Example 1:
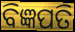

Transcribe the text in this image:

ବିଜ୍ଞପତି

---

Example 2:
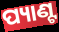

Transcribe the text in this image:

ପ୍ୟାଣ୍ଟ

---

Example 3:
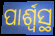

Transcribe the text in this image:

ପାର୍ଶ୍ବସ୍ଥ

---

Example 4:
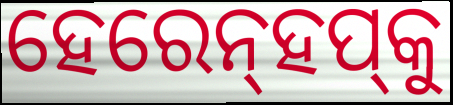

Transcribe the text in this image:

ହେରେନ୍‌ହପ୍‌କୁ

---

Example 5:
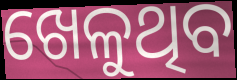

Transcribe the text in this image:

ଖେଳୁଥିବ